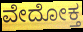
ವೇದೋಕ್ತ